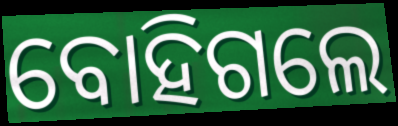
ବୋହିଗଲେ